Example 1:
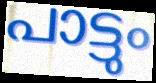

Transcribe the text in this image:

പാട്ടും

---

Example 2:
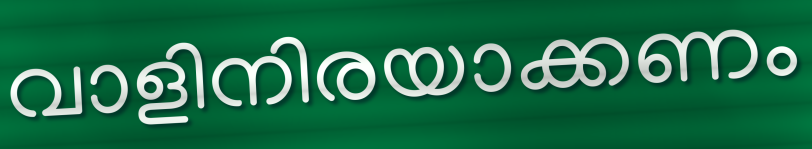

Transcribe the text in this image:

വാളിനിരയാക്കണം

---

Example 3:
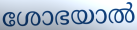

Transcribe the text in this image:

ശോഭയാൽ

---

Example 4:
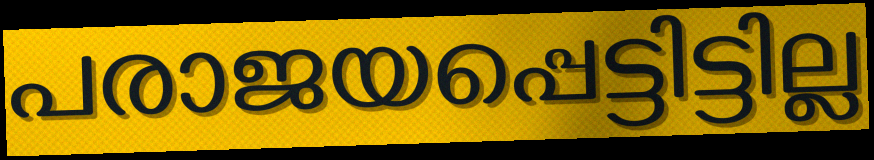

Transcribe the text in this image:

പരാജയപ്പെട്ടിട്ടില്ല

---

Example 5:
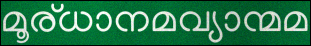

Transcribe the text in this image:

മൂര്ധാനമവ്യാന്മമ